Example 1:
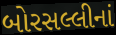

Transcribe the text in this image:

બોરસલ્લીનાં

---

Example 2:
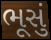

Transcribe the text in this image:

ભૂસું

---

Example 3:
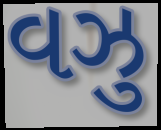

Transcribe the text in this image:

વઝુ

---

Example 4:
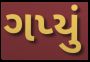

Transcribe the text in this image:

ગપ્યું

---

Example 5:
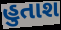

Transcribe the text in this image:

હુતાશ